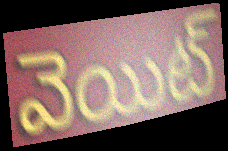
వెయిట్